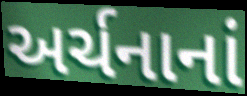
અર્ચનાનાં